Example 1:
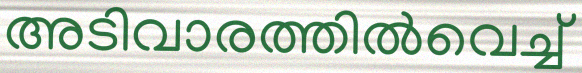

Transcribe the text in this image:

അടിവാരത്തിൽവെച്ച്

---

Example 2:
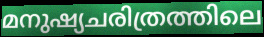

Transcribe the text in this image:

മനുഷ്യചരിത്രത്തിലെ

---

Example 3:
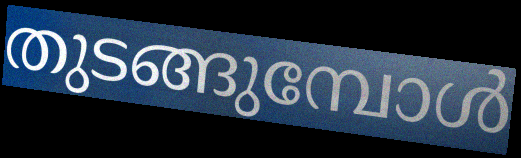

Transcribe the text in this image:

തുടങ്ങുമ്പോൾ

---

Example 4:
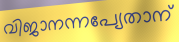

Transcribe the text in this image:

വിജാനന്നപ്യേതാന്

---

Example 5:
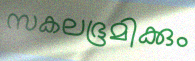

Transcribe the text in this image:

സകലഭൂമിക്കും